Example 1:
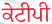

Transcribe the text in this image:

ਕੇਟੀਪੀ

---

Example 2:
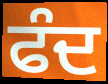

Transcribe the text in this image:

ਫੰਦ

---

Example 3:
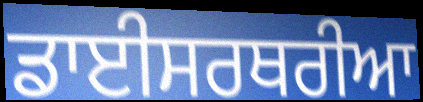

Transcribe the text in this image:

ਡਾਈਸਰਥਰੀਆ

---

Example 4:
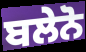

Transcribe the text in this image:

ਬਲੇਨੋ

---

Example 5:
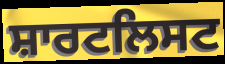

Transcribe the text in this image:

ਸ਼ਾਰਟਲਿਸਟ